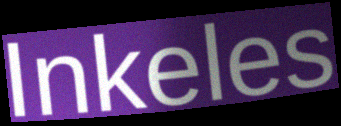
Inkeles